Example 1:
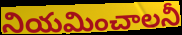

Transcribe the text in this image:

నియమించాలనీ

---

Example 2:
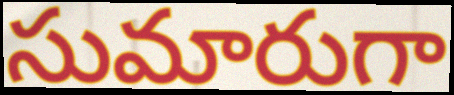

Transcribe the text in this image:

సుమారుగా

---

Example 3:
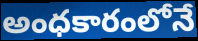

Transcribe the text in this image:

అంధకారంలోనే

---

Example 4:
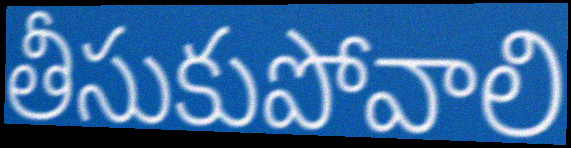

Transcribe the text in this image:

తీసుకుపోవాలి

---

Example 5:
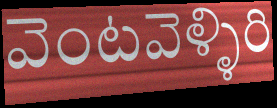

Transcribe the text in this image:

వెంటవెళ్ళిరి